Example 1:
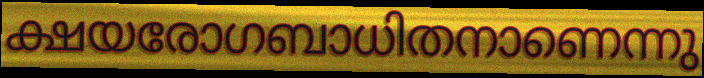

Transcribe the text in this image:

ക്ഷയരോഗബാധിതനാണെന്നു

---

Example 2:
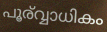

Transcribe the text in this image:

പൂര്വ്വാധികം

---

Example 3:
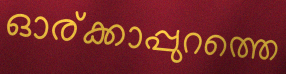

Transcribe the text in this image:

ഓര്ക്കാപ്പുറത്തെ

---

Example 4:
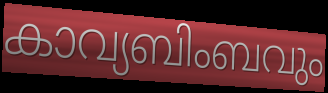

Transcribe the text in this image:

കാവ്യബിംബവും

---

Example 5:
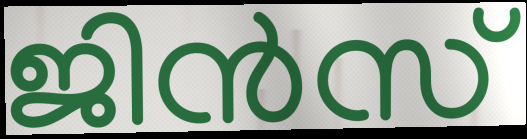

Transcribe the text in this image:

ജിൻസ്